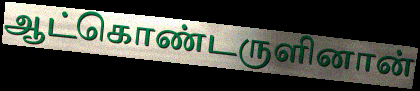
ஆட்கொண்டருளினான்